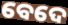
ବେଦେ